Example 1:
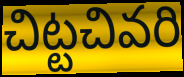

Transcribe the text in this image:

చిట్టచివరి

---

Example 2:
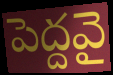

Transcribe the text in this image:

పెద్దవై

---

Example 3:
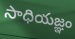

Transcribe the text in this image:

సాధియజ్ఞం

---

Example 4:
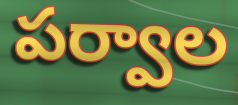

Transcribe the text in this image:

పర్వాల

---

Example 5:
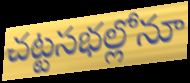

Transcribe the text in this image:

చట్టసభల్లోనూ